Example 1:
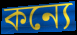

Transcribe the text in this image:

কন্যে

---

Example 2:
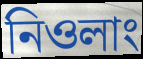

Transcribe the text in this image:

নিওলাং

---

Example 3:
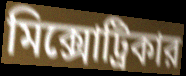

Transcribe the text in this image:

মিক্সোট্রিকার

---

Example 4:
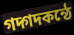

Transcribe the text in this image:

গদ্গদকন্ঠে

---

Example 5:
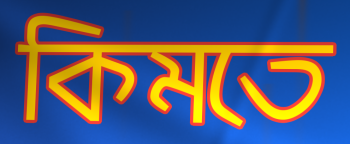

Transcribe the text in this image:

কিমতে